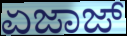
ಏಜಾಜ್